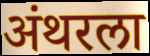
अंथरला